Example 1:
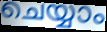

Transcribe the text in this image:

ചെയ്യാം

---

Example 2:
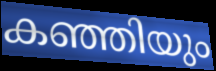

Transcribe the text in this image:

കഞ്ഞിയും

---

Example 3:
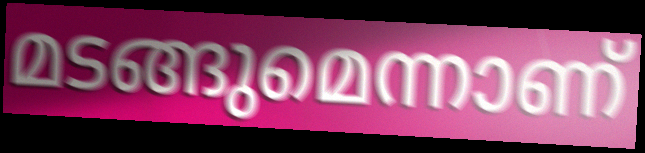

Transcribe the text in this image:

മടങ്ങുമെന്നാണ്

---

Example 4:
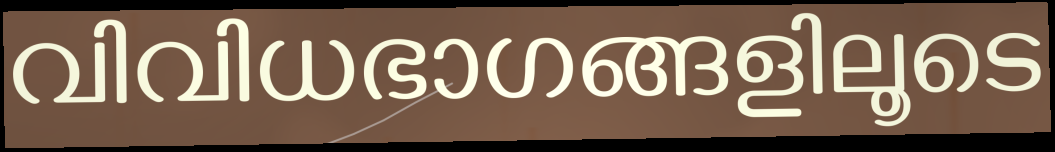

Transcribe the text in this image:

വിവിധഭാഗങ്ങളിലൂടെ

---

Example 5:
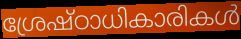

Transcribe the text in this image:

ശ്രേഷ്ഠാധികാരികൾ